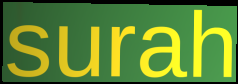
surah